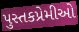
પુસ્તકપ્રેમીઓ